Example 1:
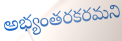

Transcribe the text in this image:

అభ్యంతరకరమని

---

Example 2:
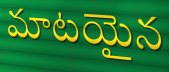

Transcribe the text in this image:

మాటయైన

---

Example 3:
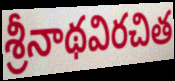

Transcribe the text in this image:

శ్రీనాథవిరచిత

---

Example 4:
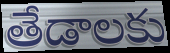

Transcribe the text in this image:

తేడాలకు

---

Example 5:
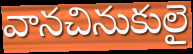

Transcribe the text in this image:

వానచినుకులై